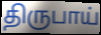
திருபாய்